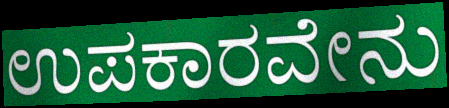
ಉಪಕಾರವೇನು